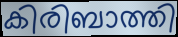
കിരിബാത്തി